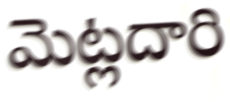
మెట్లదారి